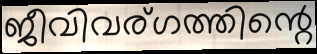
ജീവിവര്ഗത്തിന്റെ